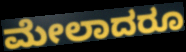
ಮೇಲಾದರೂ